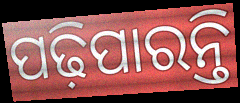
ପଢ଼ିପାରନ୍ତି